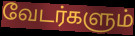
வேடர்களும்